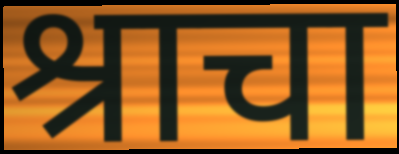
श्राचा